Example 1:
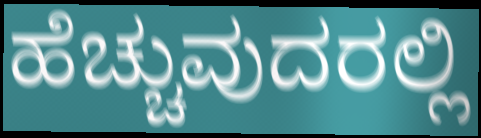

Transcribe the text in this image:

ಹೆಚ್ಚುವುದರಲ್ಲಿ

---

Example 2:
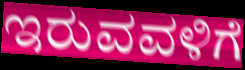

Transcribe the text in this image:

ಇರುವವಳಿಗೆ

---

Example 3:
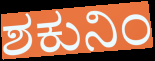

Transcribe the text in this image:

ಶಕುನಿಂ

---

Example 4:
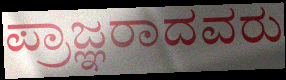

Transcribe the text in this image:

ಪ್ರಾಜ್ಞರಾದವರು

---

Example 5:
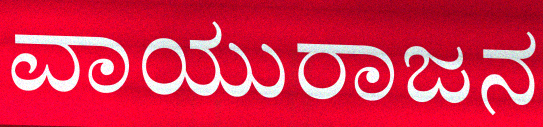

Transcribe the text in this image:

ವಾಯುರಾಜನ